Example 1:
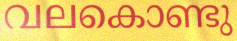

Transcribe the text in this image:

വലകൊണ്ടു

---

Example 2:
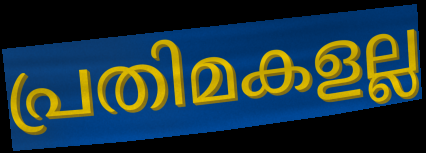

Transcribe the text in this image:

പ്രതിമകളല്ല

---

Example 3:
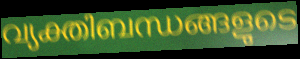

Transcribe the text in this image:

വ്യക്തിബന്ധങ്ങളുടെ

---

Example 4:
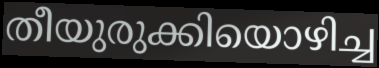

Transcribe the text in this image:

തീയുരുക്കിയൊഴിച്ച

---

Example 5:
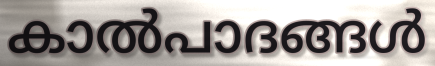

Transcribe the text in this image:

കാൽപാദങ്ങൾ